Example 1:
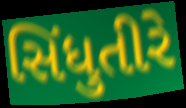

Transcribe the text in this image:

સિંધુતીરે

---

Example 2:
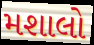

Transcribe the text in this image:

મશાલો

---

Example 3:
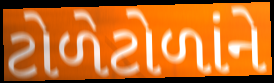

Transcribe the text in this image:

ટોળેટોળાંને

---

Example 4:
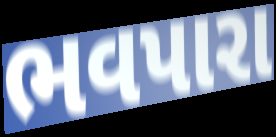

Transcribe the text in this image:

ભવપારા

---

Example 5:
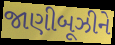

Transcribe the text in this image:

જાણીબૂઝીને